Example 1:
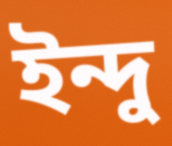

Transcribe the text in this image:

ইন্দু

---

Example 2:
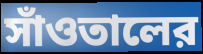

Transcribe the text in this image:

সাঁওতালের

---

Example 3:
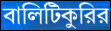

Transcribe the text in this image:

বালিটিকুরির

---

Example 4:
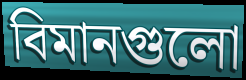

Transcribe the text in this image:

বিমানগুলো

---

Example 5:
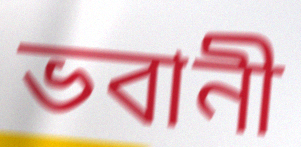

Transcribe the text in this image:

ভবানী